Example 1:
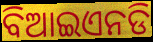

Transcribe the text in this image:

ବିଆଇଏନଡି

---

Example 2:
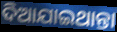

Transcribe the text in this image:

ଦିଆଯାଇଥାନ୍ତା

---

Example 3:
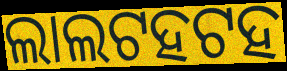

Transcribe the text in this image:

ଲାଲଟହଟହ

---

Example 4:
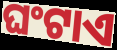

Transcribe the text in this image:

ଘଂଟାଏ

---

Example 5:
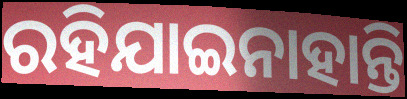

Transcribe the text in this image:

ରହିଯାଇନାହାନ୍ତି